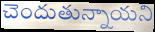
చెందుతున్నాయని